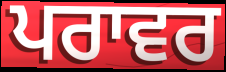
ਪਰਾਵਰ